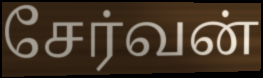
சேர்வன்